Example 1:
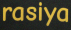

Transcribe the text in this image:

rasiya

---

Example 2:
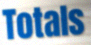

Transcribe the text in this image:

Totals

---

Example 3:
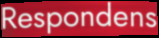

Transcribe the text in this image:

Respondens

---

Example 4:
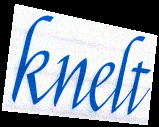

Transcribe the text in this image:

knelt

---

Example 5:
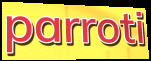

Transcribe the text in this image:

parroti